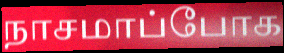
நாசமாப்போக